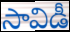
సావిడీ